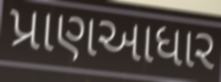
પ્રાણઆધાર